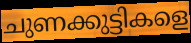
ചുണക്കുട്ടികളെ